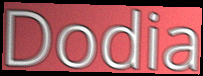
Dodia